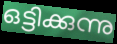
ഒട്ടിക്കുന്നു